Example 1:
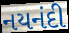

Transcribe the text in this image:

નયનંદી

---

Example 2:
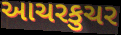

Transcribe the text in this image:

આચરકુચર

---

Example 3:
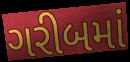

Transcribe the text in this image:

ગરીબમાં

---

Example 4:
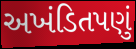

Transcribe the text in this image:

અખંડિતપણું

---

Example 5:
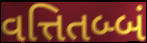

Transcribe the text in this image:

વત્તિતબ્બં